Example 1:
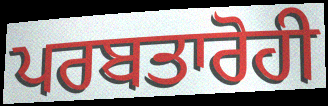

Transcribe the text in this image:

ਪਰਬਤਾਰੋਹੀ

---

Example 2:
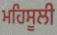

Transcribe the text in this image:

ਮਹਿਸੂਲੀ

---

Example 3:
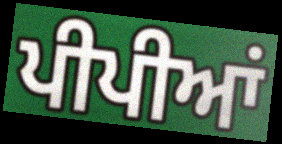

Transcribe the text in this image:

ਪੀਪੀਆਂ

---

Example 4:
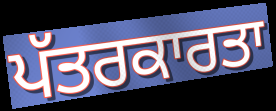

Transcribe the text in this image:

ਪੱਤਰਕਾਰਤਾ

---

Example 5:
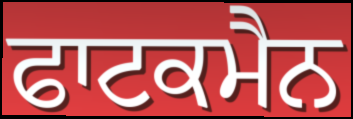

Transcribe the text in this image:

ਫਾਟਕਮੈਨ